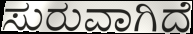
ಸುರುವಾಗಿದೆ